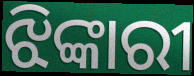
ଝିଙ୍କାରୀ